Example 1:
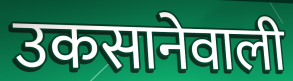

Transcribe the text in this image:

उकसानेवाली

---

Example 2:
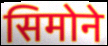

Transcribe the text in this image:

सिमोने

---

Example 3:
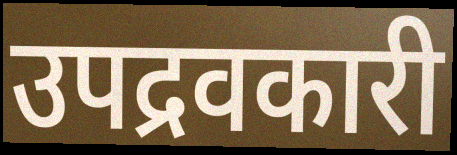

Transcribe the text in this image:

उपद्रवकारी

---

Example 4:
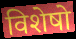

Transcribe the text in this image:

विशेषो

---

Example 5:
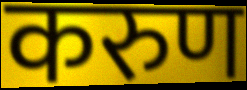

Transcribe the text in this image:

करुण